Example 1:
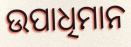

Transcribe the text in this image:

ଉପାଧିମାନ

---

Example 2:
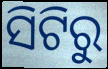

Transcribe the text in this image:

ସିଟିରୁ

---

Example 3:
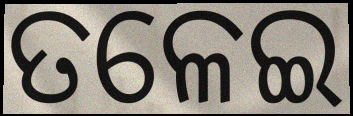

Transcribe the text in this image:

ତଳେଇ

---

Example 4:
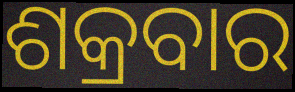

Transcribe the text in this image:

ଶକ୍ରବାର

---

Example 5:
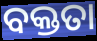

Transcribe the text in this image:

ବକ୍ତତା